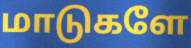
மாடுகளே